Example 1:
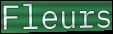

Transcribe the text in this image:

Fleurs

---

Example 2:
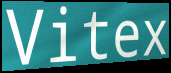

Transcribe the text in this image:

Vitex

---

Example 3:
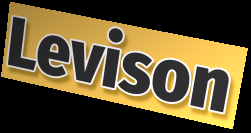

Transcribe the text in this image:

Levison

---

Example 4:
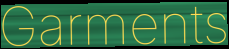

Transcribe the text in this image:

Garments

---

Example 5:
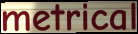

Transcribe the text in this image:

metrical